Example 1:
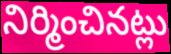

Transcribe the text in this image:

నిర్మించినట్లు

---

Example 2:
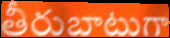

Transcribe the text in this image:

తీరుబాటుగా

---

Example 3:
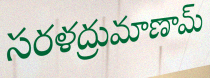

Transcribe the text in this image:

సరళద్రుమాణామ్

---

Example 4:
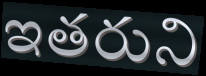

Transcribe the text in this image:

ఇతరుని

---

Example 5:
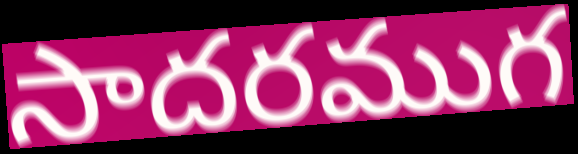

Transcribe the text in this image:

సాదరముగ